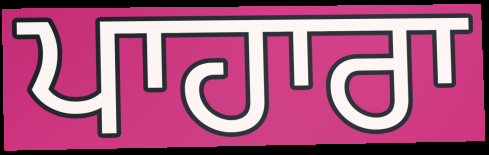
ਪਾਹਾਰਾ